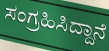
ಸಂಗ್ರಹಿಸಿದ್ದಾನೆ